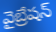
వైబ్రేషన్